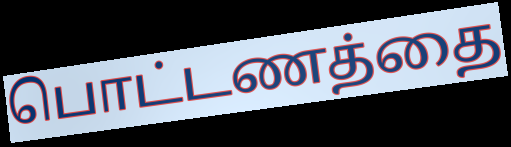
பொட்டணத்தை